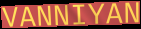
VANNIYAN